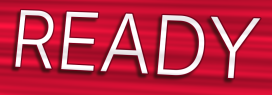
READY